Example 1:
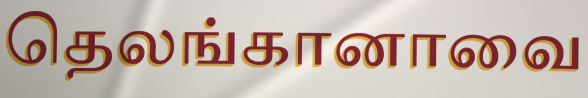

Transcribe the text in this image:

தெலங்கானாவை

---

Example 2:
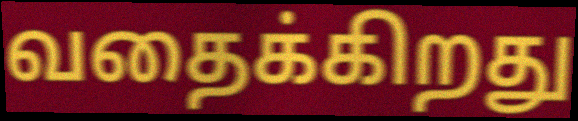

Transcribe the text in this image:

வதைக்கிறது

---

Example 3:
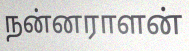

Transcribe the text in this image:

நன்னராளன்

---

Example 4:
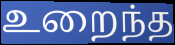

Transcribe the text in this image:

உறைந்த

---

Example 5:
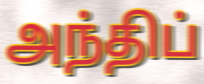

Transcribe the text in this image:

அந்திப்